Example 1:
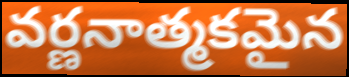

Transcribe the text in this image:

వర్ణనాత్మకమైన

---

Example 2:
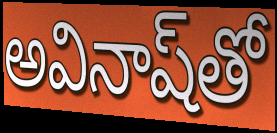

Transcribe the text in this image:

అవినాష్‌తో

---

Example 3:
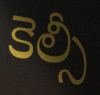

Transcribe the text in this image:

కెల్సీ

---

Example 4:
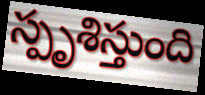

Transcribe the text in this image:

స్పృశిస్తుంది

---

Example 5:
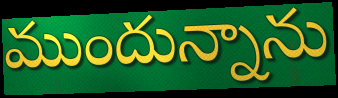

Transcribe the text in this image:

ముందున్నాను